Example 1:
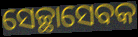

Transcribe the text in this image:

ସେଚ୍ଛାସେବକ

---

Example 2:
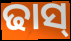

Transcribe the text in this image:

ଢାସ୍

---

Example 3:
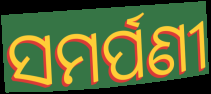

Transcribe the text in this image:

ସମର୍ପଣୀ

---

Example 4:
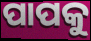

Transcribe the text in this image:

ପାପକୁ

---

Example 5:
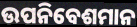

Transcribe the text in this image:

ଉପନିବେଶମାନ